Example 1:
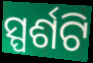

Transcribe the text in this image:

ସ୍ପର୍ଶଟି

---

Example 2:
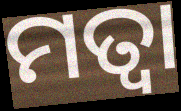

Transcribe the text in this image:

ମତ୍ୱା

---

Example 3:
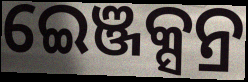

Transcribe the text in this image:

ଇେଞ୍ଜକ୍ସନ୍ର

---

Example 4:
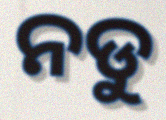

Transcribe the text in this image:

ନଡୁ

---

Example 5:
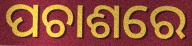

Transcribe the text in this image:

ପଚାଶରେ